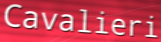
Cavalieri